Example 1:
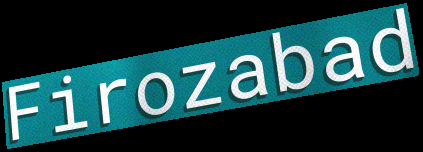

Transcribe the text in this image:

Firozabad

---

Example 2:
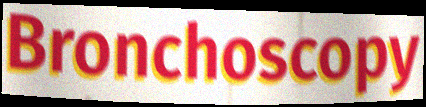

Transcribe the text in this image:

Bronchoscopy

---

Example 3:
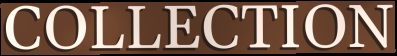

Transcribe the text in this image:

COLLECTION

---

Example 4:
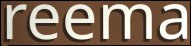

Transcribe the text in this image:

reema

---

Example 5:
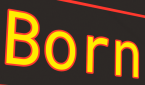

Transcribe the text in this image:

Born